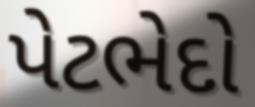
પેટભેદો